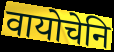
वायोचेनि